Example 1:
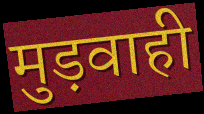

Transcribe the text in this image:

मुड़वाही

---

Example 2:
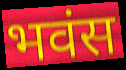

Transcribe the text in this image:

भवंस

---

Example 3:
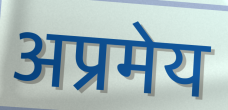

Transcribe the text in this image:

अप्रमेय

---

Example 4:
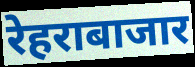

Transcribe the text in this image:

रेहराबाजार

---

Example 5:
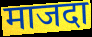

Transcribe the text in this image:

माजदा